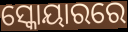
ସ୍କୋୟାରରେ